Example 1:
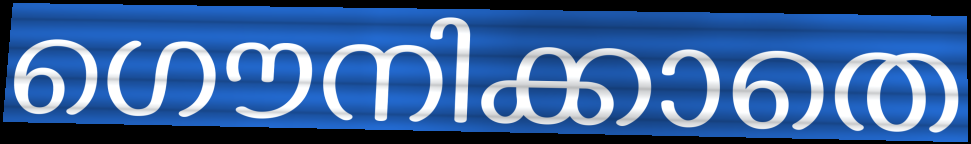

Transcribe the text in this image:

ഗൌനിക്കാതെ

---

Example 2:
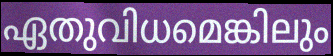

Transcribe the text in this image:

ഏതുവിധമെങ്കിലും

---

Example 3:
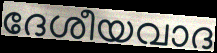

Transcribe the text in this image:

ദേശീയവാദ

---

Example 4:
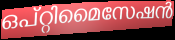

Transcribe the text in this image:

ഒപ്റ്റിമൈസേഷൻ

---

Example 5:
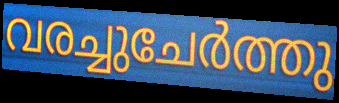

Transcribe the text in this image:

വരച്ചുചേർത്തു